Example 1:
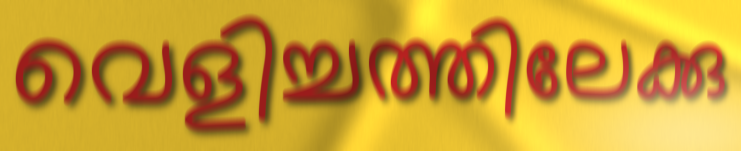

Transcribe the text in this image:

വെളിച്ചത്തിലേക്കു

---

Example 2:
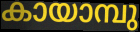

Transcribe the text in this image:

കായാമ്പു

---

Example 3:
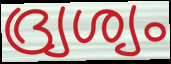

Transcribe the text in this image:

ദ്ര്യശ്യം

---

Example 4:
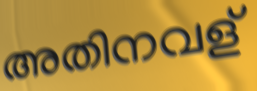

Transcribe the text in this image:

അതിനവള്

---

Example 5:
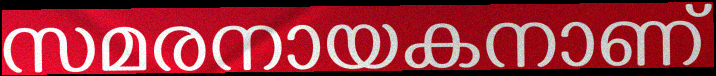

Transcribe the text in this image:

സമരനായകനാണ്